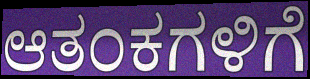
ಆತಂಕಗಳಿಗೆ